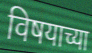
विषयाच्या